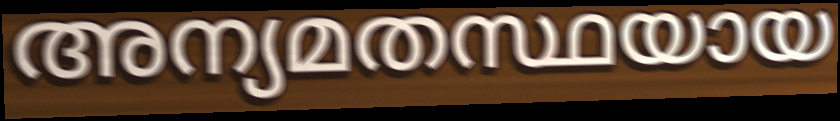
അന്യമതസ്ഥയായ